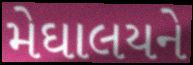
મેઘાલયને